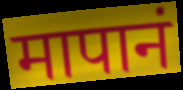
मापानं